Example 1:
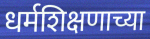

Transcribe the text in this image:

धर्मशिक्षणाच्या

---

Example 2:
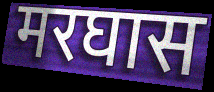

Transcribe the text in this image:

मरघास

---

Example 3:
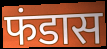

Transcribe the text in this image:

फंडास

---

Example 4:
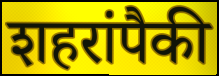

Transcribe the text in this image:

शहरांपैकी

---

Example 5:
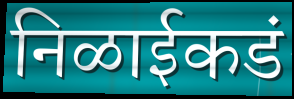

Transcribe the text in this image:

निळाईकडं